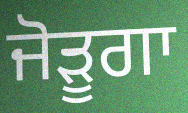
ਜੋੜੂਗਾ